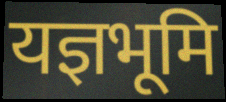
यज्ञभूमि